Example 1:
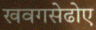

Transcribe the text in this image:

खवगसेढोए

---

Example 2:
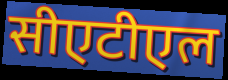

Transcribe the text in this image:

सीएटीएल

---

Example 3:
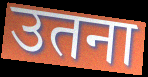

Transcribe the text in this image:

उतना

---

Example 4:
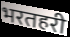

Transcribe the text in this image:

भरतहरी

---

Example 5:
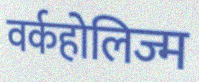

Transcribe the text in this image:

वर्कहोलिज्म